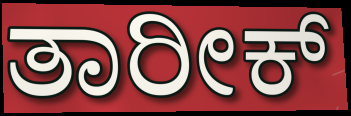
ತಾರೀಕ್